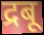
द्रबू